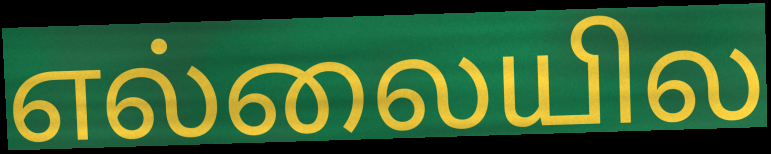
எல்லையில